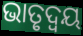
ଭାତୃଦ୍ବୟ